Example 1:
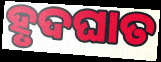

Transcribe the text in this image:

ହୃଦଘାତ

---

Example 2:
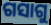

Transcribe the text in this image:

ଗସାଗୁ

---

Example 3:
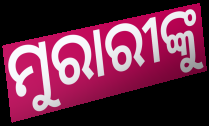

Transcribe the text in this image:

ମୁରାରୀଙ୍କୁ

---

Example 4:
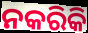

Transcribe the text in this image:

ନକରିକି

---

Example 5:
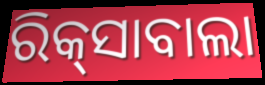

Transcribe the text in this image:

ରିକ୍‌ସାବାଲା